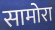
सामोरा